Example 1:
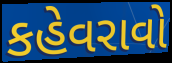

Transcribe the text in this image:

કહેવરાવો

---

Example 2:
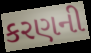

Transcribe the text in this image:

કરણની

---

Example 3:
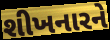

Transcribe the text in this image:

શીખનારને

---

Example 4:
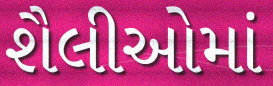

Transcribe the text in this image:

શૈલીઓમાં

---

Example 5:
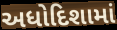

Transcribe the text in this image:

અધોદિશામાં